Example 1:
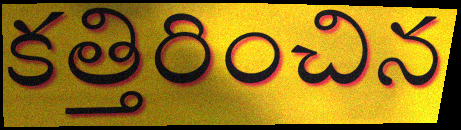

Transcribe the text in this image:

కత్తిరించిన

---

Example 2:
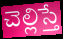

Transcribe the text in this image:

చెల్లిస్తే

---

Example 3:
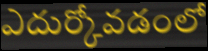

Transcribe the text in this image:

ఎదుర్కోవడంలో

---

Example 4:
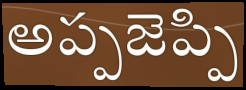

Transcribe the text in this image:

అప్పజెప్పి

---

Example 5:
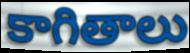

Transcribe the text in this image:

కాగితాలు